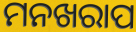
ମନଖରାପ